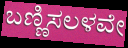
ಬಣ್ಣಿಸಲಳವೇ